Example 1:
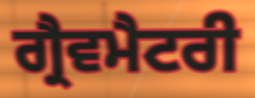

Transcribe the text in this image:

ਗ੍ਰੈਵਮੈਟਰੀ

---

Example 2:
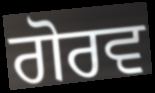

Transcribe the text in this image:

ਗੋਰਵ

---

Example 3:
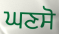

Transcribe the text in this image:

ਘਣਸੋ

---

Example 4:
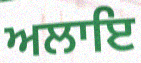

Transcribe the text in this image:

ਅਲਾਇ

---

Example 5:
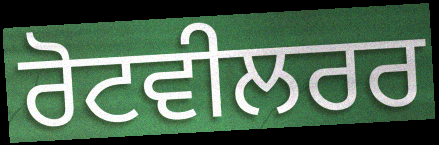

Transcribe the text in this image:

ਰੋਟਵੀਲਰਰ